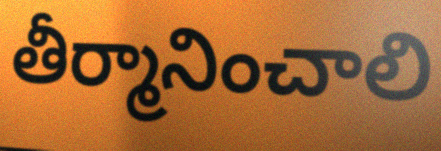
తీర్మానించాలి